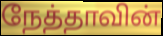
நேத்தாவின்